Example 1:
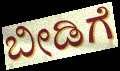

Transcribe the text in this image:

ಬೀಡಿಗೆ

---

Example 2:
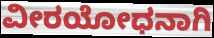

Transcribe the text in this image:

ವೀರಯೋಧನಾಗಿ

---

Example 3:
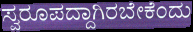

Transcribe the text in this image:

ಸ್ವರೂಪದ್ದಾಗಿರಬೇಕೆಂದು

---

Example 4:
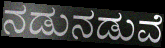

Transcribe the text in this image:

ನಡುನಡುವೆ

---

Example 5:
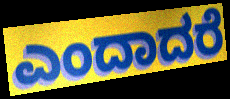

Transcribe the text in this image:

ಎಂದಾದರೆ